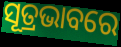
ସୂତ୍ରଭାବରେ